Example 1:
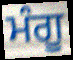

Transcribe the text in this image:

ਮੰਗੂ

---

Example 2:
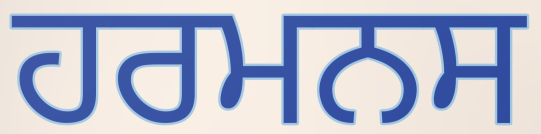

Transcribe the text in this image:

ਹਰਮਨਸ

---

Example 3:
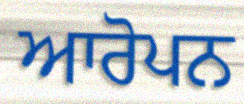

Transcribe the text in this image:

ਆਰੋਪਨ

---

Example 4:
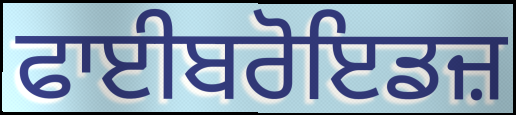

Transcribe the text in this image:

ਫਾਈਬਰੋਇਡਜ਼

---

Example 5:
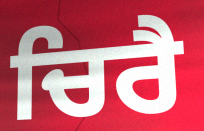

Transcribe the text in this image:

ਚਿਰੈ